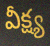
వీక్ష్య